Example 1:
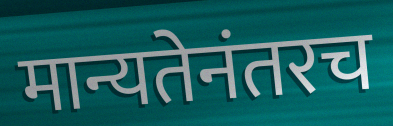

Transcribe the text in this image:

मान्यतेनंतरच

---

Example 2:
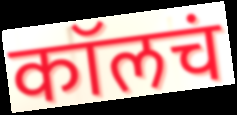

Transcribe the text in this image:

कॉलचं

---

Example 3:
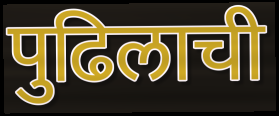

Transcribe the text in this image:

पुढिलाची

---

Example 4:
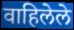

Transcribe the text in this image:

वाहिलेले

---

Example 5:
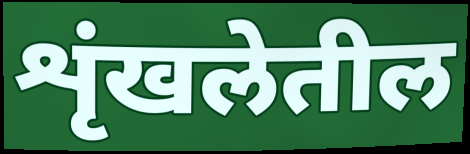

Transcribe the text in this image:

शृंखलेतील